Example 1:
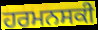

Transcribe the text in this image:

ਹਰਮਨਸਕੀ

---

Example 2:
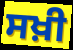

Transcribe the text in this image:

ਸਖ਼ੀ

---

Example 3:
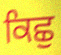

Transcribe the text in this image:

ਕਿਛੁ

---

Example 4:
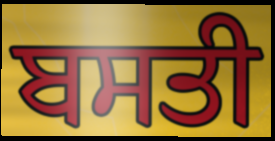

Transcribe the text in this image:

ਬਸਤੀ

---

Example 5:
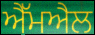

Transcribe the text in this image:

ਐੱਮਐਲ